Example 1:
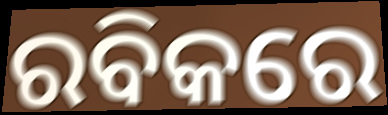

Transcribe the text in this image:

ରବିକରେ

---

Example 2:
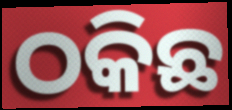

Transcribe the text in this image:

ଠକିଛ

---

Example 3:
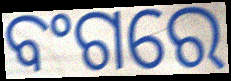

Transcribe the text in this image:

ବଂଗରେ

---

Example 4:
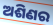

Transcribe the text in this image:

ଅଶିଣର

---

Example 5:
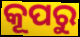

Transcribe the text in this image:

କୂପରୁ